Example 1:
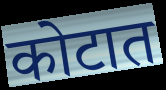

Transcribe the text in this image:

कोटात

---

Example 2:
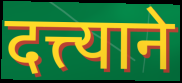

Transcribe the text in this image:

दत्त्याने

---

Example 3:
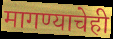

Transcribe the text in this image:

मागण्याचेही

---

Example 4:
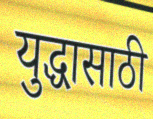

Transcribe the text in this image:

युद्धासाठी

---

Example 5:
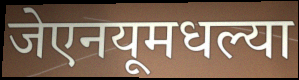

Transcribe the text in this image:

जेएनयूमधल्या